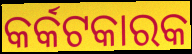
କର୍କଟକାରକ